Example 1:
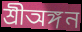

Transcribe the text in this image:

শ্রীঅঙ্গন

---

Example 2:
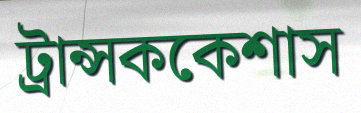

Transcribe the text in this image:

ট্রান্সককেশাস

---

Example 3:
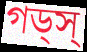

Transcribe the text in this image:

গড্স্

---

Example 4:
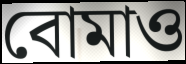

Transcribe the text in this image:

বোমাও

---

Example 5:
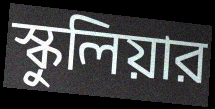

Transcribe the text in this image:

স্কুলিয়ার